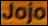
Jojo